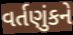
વર્તણુંકને